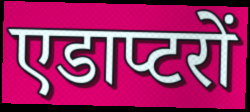
एडाप्टरों